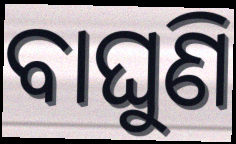
ବାଘୁଣି